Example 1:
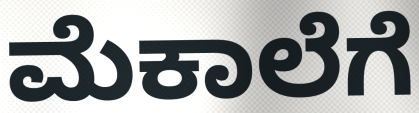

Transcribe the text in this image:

ಮೆಕಾಲೆಗೆ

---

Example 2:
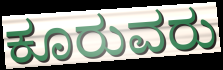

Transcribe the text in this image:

ಕೂರುವರು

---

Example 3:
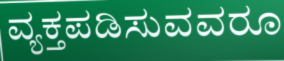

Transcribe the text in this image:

ವ್ಯಕ್ತಪಡಿಸುವವರೂ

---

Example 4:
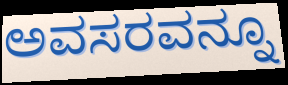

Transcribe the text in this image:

ಅವಸರವನ್ನೂ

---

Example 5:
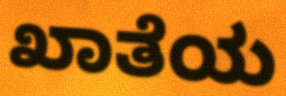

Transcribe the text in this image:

ಖಾತೆಯ